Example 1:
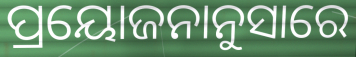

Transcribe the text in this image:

ପ୍ରୟୋଜନାନୁସାରେ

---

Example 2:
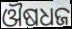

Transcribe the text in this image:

ଔଷଧଜ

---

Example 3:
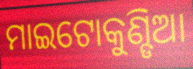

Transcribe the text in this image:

ମାଇଟୋକୁଣ୍ଡିଆ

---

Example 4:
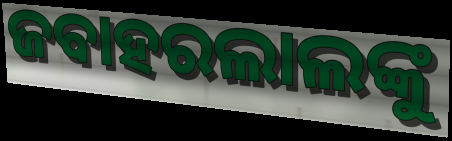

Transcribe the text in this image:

ଜବାହରଲାଲଙ୍କୁ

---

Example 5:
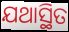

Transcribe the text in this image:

ଯଥାସ୍ଥିତ